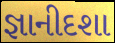
જ્ઞાનીદશા